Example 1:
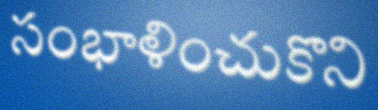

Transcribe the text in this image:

సంభాళించుకొని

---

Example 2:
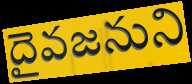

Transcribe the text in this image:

దైవజనుని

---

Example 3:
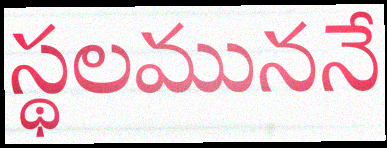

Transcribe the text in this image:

స్థలముననే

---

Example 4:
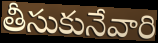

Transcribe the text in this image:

తీసుకునేవారి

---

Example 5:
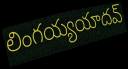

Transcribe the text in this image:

లింగయ్యయాదవ్